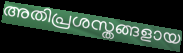
അതിപ്രശസ്തങ്ങളായ